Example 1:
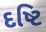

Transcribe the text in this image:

દષ્ટિ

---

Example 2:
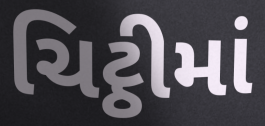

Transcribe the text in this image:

ચિટ્ઠીમાં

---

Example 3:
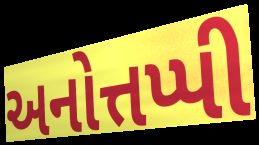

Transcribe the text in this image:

અનોત્તપ્પી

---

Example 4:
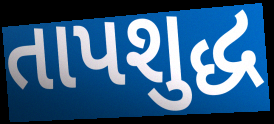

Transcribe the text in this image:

તાપશુદ્ધ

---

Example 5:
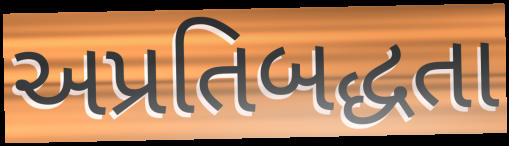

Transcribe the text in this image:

અપ્રતિબદ્ધતા